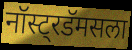
नॉस्ट्रडॅमसला